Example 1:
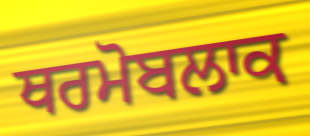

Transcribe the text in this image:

ਥਰਮੋਬਲਾਕ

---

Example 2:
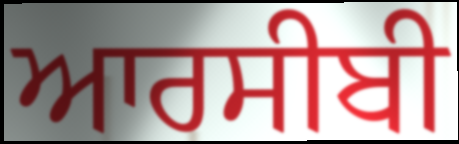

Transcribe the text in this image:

ਆਰਸੀਬੀ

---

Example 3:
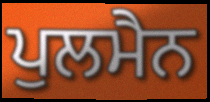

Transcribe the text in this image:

ਪੁਲਮੈਨ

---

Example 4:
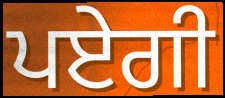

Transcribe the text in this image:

ਪਏਗੀ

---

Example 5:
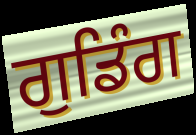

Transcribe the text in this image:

ਗੁਡਿੰਗ